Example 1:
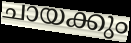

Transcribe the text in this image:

ചായക്കും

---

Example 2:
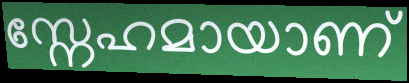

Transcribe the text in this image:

സ്നേഹമായാണ്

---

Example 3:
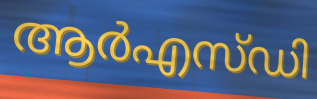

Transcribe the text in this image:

ആർഎസ്ഡി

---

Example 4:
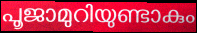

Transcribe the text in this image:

പൂജാമുറിയുണ്ടാകും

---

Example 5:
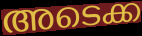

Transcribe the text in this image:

അടെക്ക